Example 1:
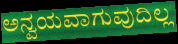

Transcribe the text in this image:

ಅನ್ವಯವಾಗುವುದಿಲ್ಲ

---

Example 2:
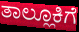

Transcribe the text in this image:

ತಾಲ್ಲೂಕಿಗೆ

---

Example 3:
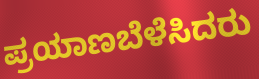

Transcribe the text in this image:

ಪ್ರಯಾಣಬೆಳೆಸಿದರು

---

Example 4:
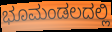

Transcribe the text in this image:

ಭೂಮಂಡಲದಲ್ಲಿ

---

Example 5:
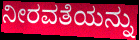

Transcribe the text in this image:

ನೀರವತೆಯನ್ನು